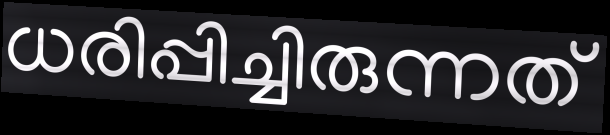
ധരിപ്പിച്ചിരുന്നത്